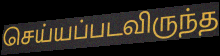
செய்யப்படவிருந்த